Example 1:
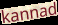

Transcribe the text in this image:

kannad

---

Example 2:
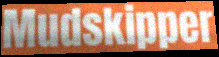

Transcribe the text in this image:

Mudskipper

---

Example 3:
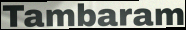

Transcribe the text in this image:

Tambaram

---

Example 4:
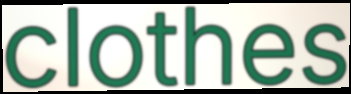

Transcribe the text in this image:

clothes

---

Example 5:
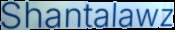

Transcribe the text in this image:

Shantalawz